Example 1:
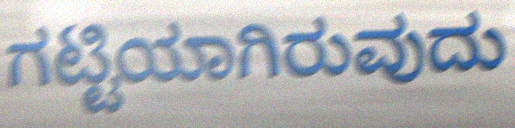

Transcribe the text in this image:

ಗಟ್ಟಿಯಾಗಿರುವುದು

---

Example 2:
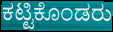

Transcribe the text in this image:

ಕಟ್ಟಿಕೊಂಡರು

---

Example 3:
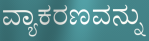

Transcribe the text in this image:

ವ್ಯಾಕರಣವನ್ನು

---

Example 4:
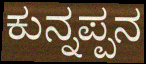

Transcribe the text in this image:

ಕುನ್ನಪ್ಪನ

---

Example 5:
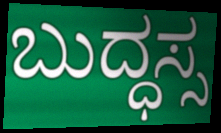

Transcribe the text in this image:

ಬುದ್ಧಸ್ಸ